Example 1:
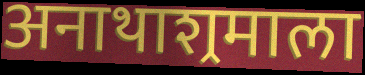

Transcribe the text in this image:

अनाथाश्रमाला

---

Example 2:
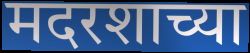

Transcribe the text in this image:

मदरशाच्या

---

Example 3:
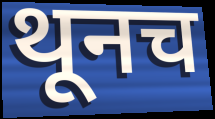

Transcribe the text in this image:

थूनच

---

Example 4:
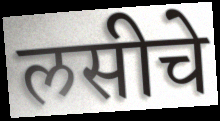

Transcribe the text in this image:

लसीचे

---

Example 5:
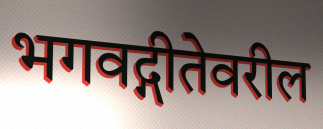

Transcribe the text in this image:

भगवद्गीतेवरील